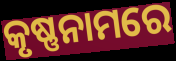
କୃଷ୍ଣନାମରେ